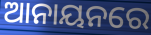
ଆନାୟନରେ